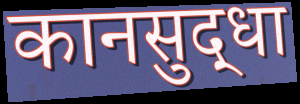
कानसुद्धा